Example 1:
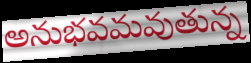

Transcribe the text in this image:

అనుభవమవుతున్న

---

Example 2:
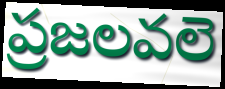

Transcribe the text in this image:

ప్రజలవలె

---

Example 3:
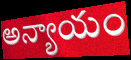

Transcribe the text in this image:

అన్యాయం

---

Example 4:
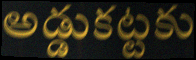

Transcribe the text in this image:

అడ్డుకట్టకు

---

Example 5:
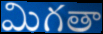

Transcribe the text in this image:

మిగతా